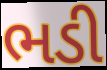
ભડી